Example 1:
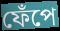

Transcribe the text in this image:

ফেঁপে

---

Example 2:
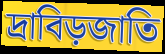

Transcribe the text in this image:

দ্রাবিড়জাতি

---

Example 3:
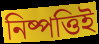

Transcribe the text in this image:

নিষ্পত্তিই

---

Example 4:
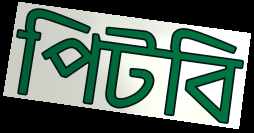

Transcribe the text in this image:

পিটবি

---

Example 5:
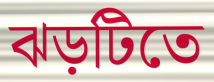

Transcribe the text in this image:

ঝড়টিতে